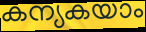
കന്യകയാം